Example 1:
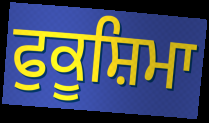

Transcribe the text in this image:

ਫੁਕੂਸ਼ਿਮਾ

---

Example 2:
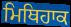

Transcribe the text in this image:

ਮਿਥਿਹਾਕ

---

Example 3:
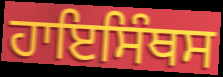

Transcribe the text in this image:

ਹਾਇਸਿੰਥਸ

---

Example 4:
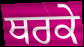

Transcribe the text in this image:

ਥਰਕੇ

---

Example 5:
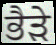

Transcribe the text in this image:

ਭੈਡ਼ੇ